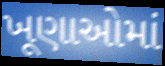
ખૂણાઓમાં